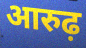
आरुढ़